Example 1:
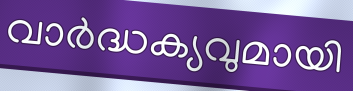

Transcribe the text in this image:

വാർദ്ധക്യവുമായി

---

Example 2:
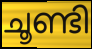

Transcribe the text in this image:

ചൂണ്ടി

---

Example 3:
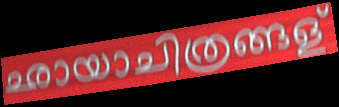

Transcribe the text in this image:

ഛായാചിത്രങ്ങള്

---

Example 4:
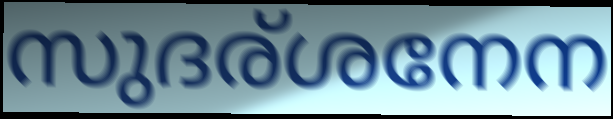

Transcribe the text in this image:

സുദര്ശനേന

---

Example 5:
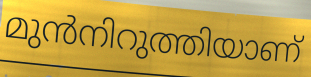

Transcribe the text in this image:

മുൻനിറുത്തിയാണ്